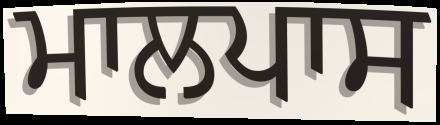
ਮਾਲਪਾਸ